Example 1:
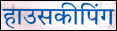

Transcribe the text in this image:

हाउसकीपिंग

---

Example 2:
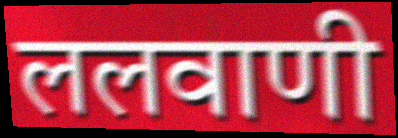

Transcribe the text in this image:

ललवाणी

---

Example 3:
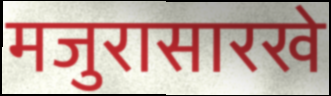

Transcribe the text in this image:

मजुरासारखे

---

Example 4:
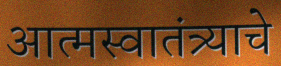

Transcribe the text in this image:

आत्मस्वातंत्र्याचे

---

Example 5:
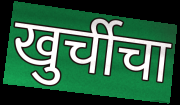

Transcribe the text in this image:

खुर्चीचा